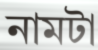
নামটা